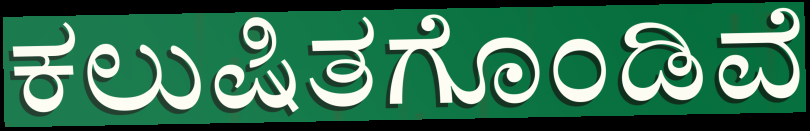
ಕಲುಷಿತಗೊಂಡಿವೆ